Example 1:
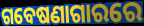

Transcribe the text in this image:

ଗବେଷଣାଗାରରେ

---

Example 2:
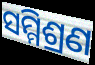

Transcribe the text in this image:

ସମ୍ମିଶ୍ରଣ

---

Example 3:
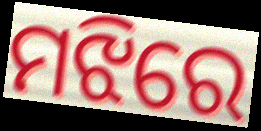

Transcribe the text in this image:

ମଝିରେ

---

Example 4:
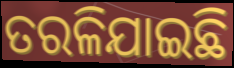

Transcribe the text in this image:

ତରଳିଯାଇଛି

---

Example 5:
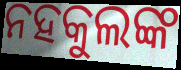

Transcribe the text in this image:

ନହକୁଲଙ୍କ